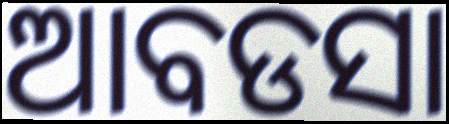
ଆବଡସା